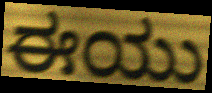
ಈಯು